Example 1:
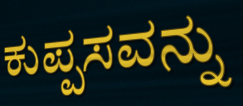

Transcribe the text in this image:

ಕುಪ್ಪಸವನ್ನು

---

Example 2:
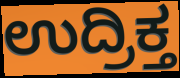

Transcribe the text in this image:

ಉದ್ರಿಕ್ತ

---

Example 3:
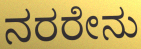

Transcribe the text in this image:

ನರರೇನು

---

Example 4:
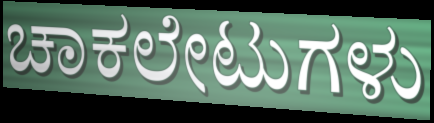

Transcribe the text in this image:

ಚಾಕಲೇಟುಗಳು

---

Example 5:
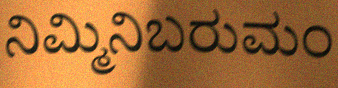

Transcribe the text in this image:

ನಿಮ್ಮಿನಿಬರುಮಂ